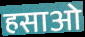
हसाओ